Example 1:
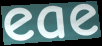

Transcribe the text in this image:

eae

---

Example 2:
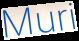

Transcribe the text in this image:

Muri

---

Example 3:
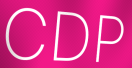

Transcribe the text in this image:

CDP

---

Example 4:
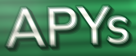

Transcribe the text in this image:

APYs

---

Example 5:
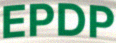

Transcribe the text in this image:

EPDP